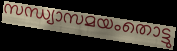
സന്ധ്യാസമയംതൊട്ടു